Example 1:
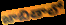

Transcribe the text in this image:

జాబితాలో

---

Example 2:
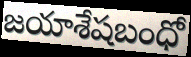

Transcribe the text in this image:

జయాశేషబంధో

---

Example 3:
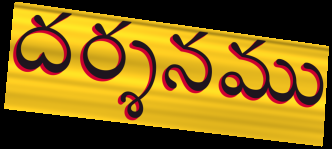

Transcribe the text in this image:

దర్శనము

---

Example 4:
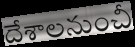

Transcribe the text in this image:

దేశాలనుంచీ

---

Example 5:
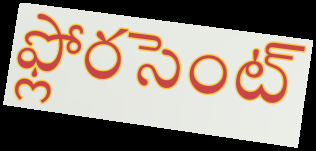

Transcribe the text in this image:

ఫ్లోరసెంట్